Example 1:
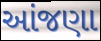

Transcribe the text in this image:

આંજણા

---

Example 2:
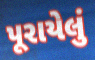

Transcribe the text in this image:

પૂરાયેલું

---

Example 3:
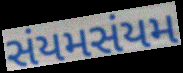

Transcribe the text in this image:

સંયમસંયમ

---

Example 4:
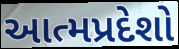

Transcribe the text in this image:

આત્મપ્રદેશો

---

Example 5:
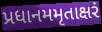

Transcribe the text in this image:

પ્રધાનમમૃતાક્ષરં